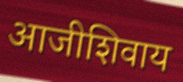
आजीशिवाय